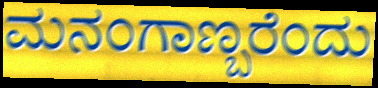
ಮನಂಗಾಣ್ಬರೆಂದು